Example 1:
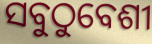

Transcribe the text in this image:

ସବୁଠୁବେଶୀ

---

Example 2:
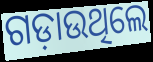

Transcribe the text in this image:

ଗଡ଼ାଉଥିଲେ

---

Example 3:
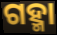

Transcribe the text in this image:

ଗହ୍ମା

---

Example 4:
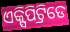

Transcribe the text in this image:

ଏକ୍ସିପିଟ୍ରିଡେ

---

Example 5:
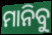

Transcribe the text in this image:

ମାନିବୁ